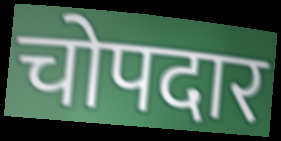
चोपदार